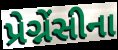
પ્રેગ્નેંસીના